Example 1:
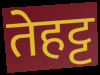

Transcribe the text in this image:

तेहट्ट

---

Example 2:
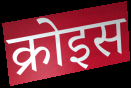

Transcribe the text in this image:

क्रोइस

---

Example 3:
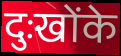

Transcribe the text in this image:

दुःखोंके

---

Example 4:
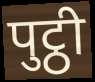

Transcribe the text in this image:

पुट्ठी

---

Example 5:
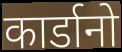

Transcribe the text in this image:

कार्डानो